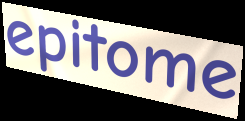
epitome